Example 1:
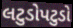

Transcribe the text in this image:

લટુડોપટુડો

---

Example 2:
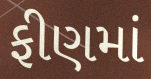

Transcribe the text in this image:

ફીણમાં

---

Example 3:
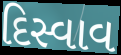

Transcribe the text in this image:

દિસ્વાવ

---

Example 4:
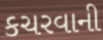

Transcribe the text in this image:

કચરવાની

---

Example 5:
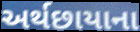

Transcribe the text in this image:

અર્થછાયાના